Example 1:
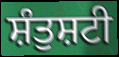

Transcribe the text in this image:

ਸ਼ੰਤੁਸ਼ਟੀ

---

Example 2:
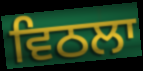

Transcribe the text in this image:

ਵਿਠਲਾ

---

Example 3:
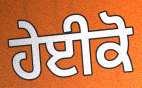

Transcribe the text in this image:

ਹੇਈਕੋ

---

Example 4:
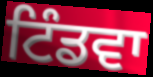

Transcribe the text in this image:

ਟਿੰਡਵਾ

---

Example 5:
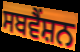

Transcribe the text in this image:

ਸਬਵੈਂਸ਼ਨ